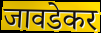
जावडेकर